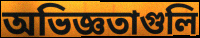
অভিজ্ঞতাগুলি